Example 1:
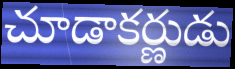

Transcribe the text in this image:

చూడాకర్ణుడు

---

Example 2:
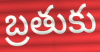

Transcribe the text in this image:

బ్రతుకు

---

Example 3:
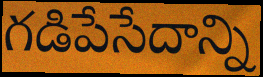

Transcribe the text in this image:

గడిపేసేదాన్ని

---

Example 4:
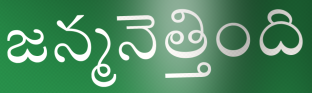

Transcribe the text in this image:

జన్మనెత్తింది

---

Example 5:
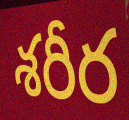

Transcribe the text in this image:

శరీర